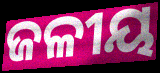
ଜଳୀୟ